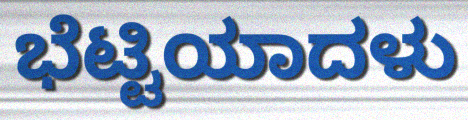
ಭೆಟ್ಟಿಯಾದಳು